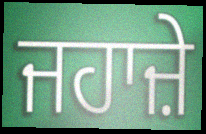
ਜਹਾਜ਼ੇ